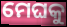
ମେଘକୁ